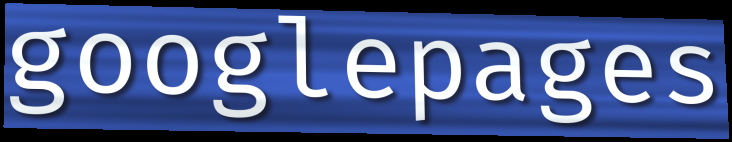
googlepages